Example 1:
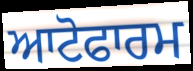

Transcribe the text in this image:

ਆਟੋਫਾਰਮ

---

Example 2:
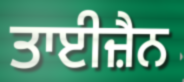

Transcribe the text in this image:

ਤਾਈਜ਼ੈਨ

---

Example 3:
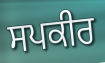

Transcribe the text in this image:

ਸਪਕੀਰ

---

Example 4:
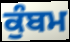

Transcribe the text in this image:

ਕੁੰਬਮ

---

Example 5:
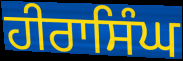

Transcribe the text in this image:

ਹੀਰਾਸਿੰਘ